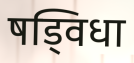
षड्विधा